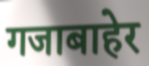
गजाबाहेर